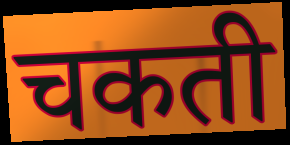
चकती